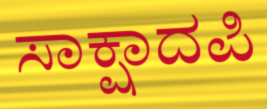
ಸಾಕ್ಷಾದಪಿ